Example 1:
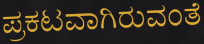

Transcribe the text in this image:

ಪ್ರಕಟವಾಗಿರುವಂತೆ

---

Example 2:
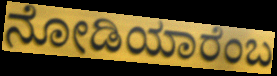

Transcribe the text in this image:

ನೋಡಿಯಾರೆಂಬ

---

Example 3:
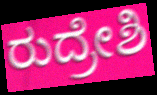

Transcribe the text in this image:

ರುದ್ರೇಶಿ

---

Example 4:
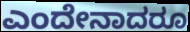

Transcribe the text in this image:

ಎಂದೇನಾದರೂ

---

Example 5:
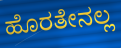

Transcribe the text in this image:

ಹೊರತೇನಲ್ಲ